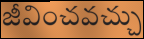
జీవించవచ్చు